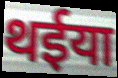
थईया